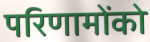
परिणामोंको